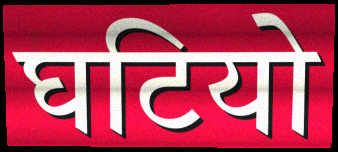
घटियो